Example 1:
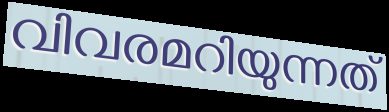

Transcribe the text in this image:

വിവരമറിയുന്നത്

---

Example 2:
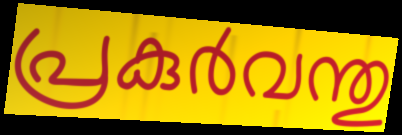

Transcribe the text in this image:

പ്രകുർവന്തു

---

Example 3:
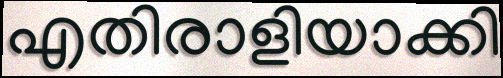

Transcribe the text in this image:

എതിരാളിയാക്കി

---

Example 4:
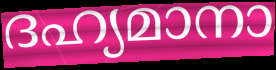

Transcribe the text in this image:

ദഹ്യമാനാ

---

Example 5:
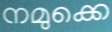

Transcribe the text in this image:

നമുക്കെ